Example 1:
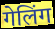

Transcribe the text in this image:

गेलिंग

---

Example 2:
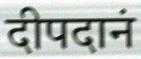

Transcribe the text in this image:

दीपदानं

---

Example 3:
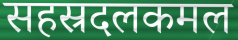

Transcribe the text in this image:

सहस्रदलकमल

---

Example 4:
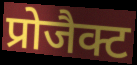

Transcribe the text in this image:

प्रोजैक्ट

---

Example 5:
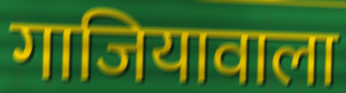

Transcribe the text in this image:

गाजियावाला